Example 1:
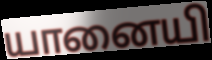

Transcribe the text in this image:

யானையி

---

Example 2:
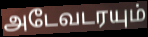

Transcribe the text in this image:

அடேவடரயும்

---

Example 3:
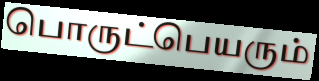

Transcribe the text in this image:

பொருட்பெயரும்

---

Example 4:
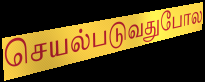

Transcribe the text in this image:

செயல்படுவதுபோல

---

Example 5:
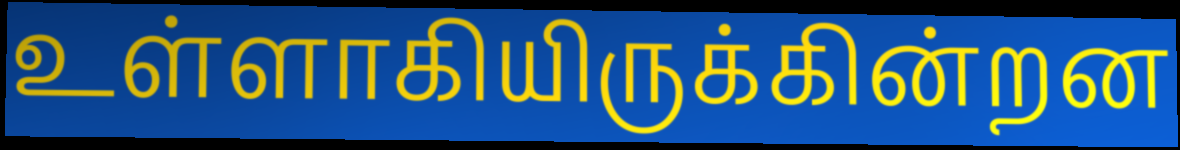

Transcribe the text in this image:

உள்ளாகியிருக்கின்றன